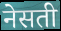
नेसती